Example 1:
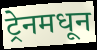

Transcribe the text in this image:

ट्रेनमधून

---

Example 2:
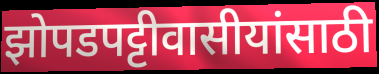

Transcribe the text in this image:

झोपडपट्टीवासीयांसाठी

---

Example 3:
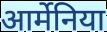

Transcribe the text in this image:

आर्मेनिया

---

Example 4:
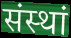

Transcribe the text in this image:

संस्थां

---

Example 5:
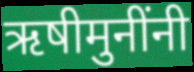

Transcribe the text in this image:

ऋषीमुनींनी